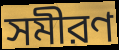
সমীরণ